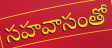
సహవాసంతో